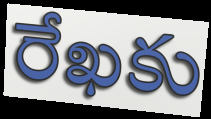
రేఖకు